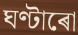
ঘণ্টাৰো